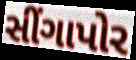
સીંગાપોર